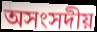
অসংসদীয়